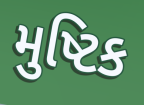
મુષ્ટિક